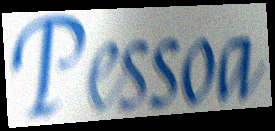
Pessoa